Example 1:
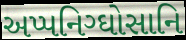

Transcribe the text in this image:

અપ્પનિગ્ઘોસાનિ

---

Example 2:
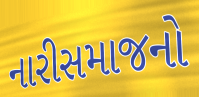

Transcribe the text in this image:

નારીસમાજનો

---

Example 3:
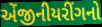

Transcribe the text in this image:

એંજીનીયરીંગનો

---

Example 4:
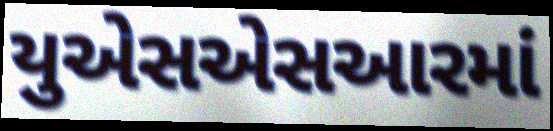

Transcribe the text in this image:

યુએસએસઆરમાં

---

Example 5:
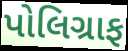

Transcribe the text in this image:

પોલિગ્રાફ